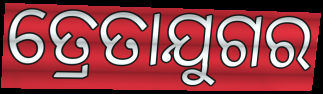
ତ୍ରେତାଯୁଗର